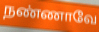
நண்ணாவே